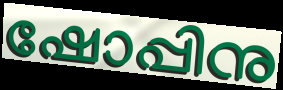
ഷോപ്പിനു